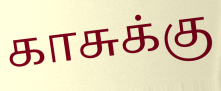
காசுக்கு